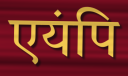
एयंपि